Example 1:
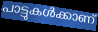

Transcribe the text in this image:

പാട്ടുകൾക്കാണ്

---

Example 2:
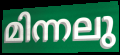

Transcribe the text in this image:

മിന്നലു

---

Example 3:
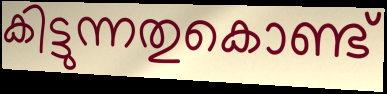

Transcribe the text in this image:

കിട്ടുന്നതുകൊണ്ട്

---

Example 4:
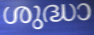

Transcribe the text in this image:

ശുദ്ധാ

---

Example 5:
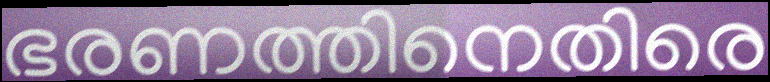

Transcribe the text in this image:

ഭരണത്തിനെതിരെ